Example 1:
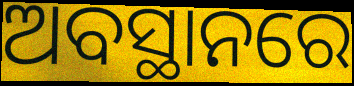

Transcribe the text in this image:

ଅବସ୍ଥାନରେ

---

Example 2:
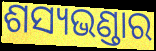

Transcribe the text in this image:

ଶସ୍ୟଭଣ୍ଡାର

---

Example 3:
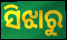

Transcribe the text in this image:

ସିଝାରୁ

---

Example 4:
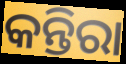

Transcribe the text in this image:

କନ୍ତିରା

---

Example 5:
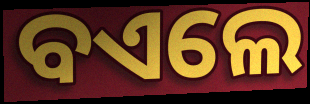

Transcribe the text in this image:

ବଏଲେ